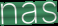
nas